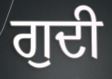
ਗੁਦੀ